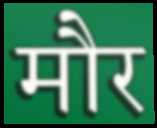
मौर